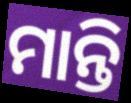
ମାନ୍ତି